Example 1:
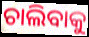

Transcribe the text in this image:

ଚାଲିବାକୁ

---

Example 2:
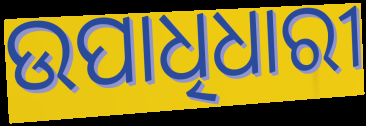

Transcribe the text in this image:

ଉପାଧିଧାରୀ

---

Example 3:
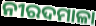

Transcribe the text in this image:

ନୀରଦମାଳା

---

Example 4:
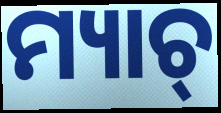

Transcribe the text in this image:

ମ୍ୟାଚ୍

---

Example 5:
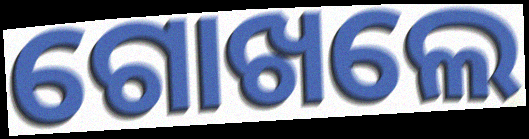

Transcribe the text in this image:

ଗୋଖଲେ